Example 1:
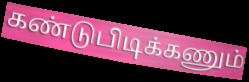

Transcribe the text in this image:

கண்டுபிடிக்கணும்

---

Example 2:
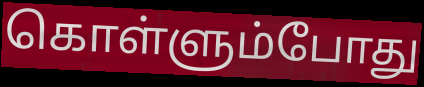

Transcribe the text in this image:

கொள்ளும்போது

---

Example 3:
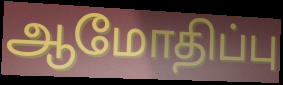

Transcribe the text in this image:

ஆமோதிப்பு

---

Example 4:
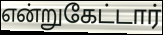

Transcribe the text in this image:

என்றுகேட்டார்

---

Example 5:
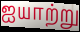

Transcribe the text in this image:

ஐயாற்று